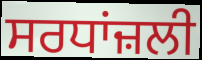
ਸਰਧਾਂਜ਼ਲੀ